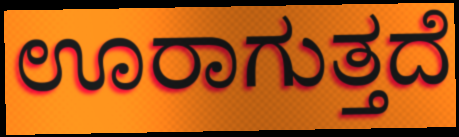
ಊರಾಗುತ್ತದೆ